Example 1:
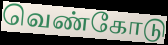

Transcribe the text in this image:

வெண்கோடு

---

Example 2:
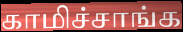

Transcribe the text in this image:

காமிச்சாங்க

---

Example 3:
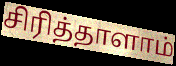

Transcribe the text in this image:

சிரித்தாளாம்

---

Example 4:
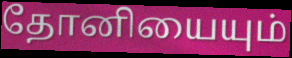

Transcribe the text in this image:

தோனியையும்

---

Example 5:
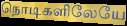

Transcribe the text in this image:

நொடிகளிலேயே